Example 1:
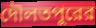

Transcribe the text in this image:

দৌলতপুরের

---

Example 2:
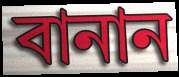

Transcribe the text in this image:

বানান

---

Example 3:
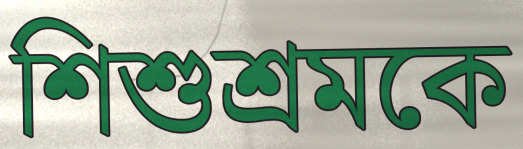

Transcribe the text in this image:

শিশুশ্রমকে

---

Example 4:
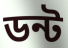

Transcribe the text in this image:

ডন্ট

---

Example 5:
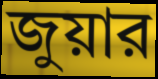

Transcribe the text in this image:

জুয়ার